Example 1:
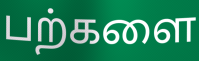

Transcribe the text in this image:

பற்களை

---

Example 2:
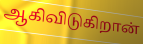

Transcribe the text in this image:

ஆகிவிடுகிறான்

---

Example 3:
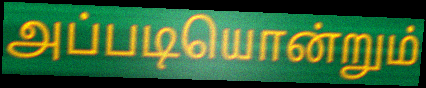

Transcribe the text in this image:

அப்படியொன்றும்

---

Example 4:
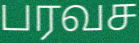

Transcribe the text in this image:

பரவச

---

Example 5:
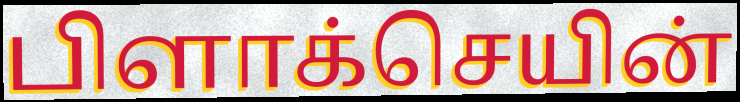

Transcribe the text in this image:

பிளாக்செயின்